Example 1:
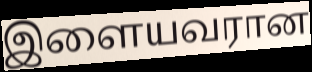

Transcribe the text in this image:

இளையவரான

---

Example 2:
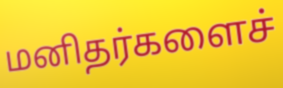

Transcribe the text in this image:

மனிதர்களைச்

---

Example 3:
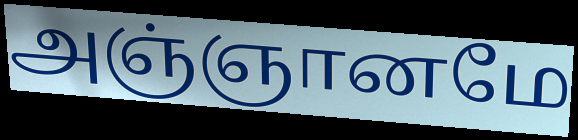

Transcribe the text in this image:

அஞ்ஞானமே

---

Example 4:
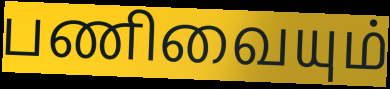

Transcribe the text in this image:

பணிவையும்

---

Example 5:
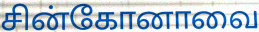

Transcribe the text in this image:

சின்கோனாவை